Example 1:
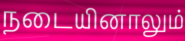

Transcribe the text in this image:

நடையினாலும்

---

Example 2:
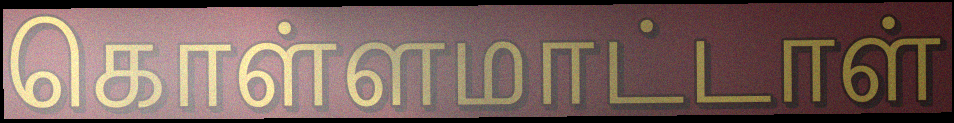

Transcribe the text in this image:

கொள்ளமாட்டாள்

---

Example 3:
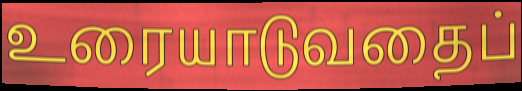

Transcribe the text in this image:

உரையாடுவதைப்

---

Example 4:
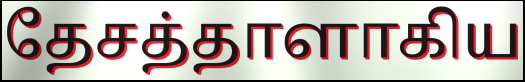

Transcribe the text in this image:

தேசத்தாளாகிய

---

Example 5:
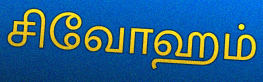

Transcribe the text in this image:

சிவோஹம்